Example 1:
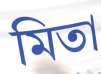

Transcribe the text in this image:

মিতা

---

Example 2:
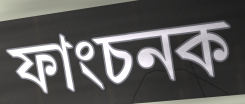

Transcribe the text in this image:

ফাংচনক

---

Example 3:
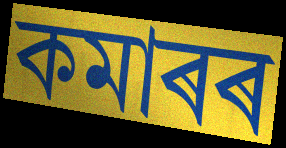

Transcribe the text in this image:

কমাৰৰ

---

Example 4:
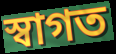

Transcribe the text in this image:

স্বাগত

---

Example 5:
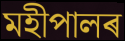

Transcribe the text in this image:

মহীপালৰ